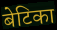
बेटिका